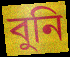
বুনি